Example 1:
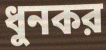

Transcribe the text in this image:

ধুনকর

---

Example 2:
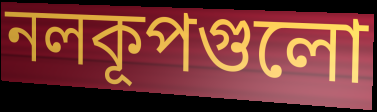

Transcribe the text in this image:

নলকূপগুলো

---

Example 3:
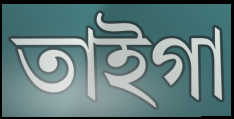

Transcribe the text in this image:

তাইগা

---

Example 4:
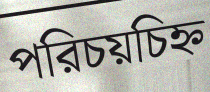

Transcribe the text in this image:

পরিচয়চিহ্ন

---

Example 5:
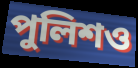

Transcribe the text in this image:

পুলিশও